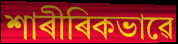
শাৰীৰিকভাৱে